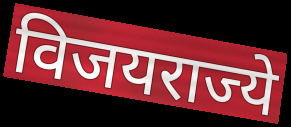
विजयराज्ये